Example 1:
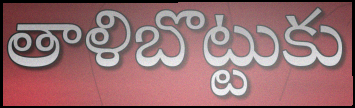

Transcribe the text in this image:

తాళిబొట్టుకు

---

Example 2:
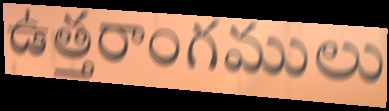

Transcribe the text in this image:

ఉత్తరాంగములు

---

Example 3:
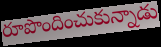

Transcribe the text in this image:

రూపొందించుకున్నాడు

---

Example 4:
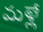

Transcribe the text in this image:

మళ్లే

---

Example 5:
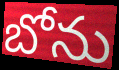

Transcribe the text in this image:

బోను